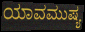
ಯಾವಮುಷ್ಯ